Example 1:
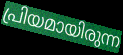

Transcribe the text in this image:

പ്രിയമായിരുന്ന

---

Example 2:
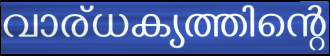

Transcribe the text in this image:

വാര്ധക്യത്തിന്റെ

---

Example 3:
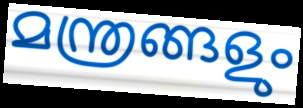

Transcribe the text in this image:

മന്ത്രങ്ങളും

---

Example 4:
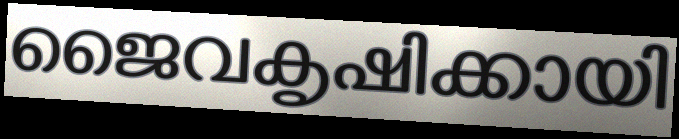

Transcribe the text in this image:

ജൈവകൃഷിക്കായി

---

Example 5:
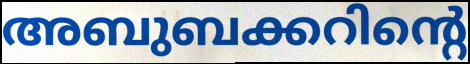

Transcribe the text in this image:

അബുബക്കറിന്റെ